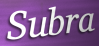
Subra